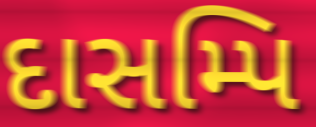
દાસમ્પિ